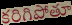
కరిగిపోతూ